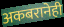
अकबरानेही